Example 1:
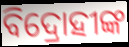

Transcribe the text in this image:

ବିଦ୍ରୋହୀଙ୍କ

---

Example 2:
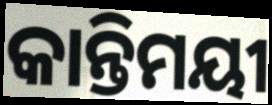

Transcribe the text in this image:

କାନ୍ତିମୟୀ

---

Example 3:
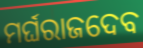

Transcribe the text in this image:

ମର୍ଘରାଜଦେବ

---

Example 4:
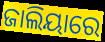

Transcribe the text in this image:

ଜାଲିୟାରେ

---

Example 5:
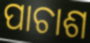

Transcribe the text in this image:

ପାଚାଶ